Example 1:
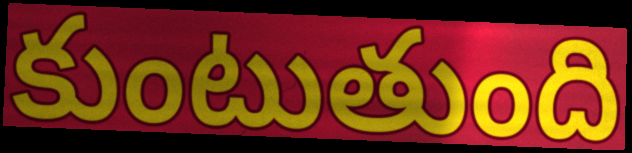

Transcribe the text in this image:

కుంటుతుంది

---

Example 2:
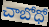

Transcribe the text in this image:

చాబోధో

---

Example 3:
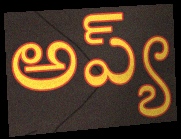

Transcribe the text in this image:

అప్య్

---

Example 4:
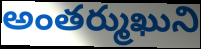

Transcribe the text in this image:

అంతర్ముఖుని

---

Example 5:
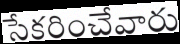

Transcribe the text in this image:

సేకరించేవారు